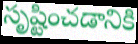
సృష్టించడానికి